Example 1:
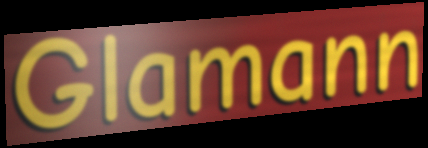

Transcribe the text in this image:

Glamann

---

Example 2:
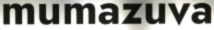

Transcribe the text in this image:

mumazuva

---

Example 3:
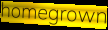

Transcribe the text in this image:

homegrown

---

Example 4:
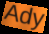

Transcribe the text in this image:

Ady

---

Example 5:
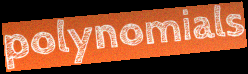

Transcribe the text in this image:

polynomials